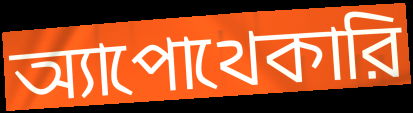
অ্যাপোথেকারি